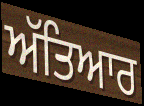
ਅੱਤਿਆਰ